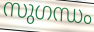
സുഗന്ധം